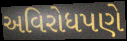
અવિરોધપણે